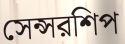
সেন্সরশিপ